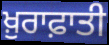
ਖ਼ੁਰਾਫ਼ਾਤੀ